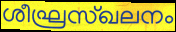
ശീഘ്രസ്ഖലനം